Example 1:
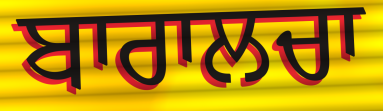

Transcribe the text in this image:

ਬਾਰਾਲਚਾ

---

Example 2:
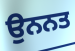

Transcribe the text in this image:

ਉਨਨਤ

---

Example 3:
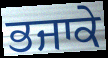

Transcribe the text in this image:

ਭਜਾਕੇ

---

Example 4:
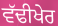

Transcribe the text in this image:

ਵੱਢੀਖੇਰ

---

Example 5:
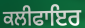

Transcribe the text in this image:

ਕਲੀਫਾਇਰ